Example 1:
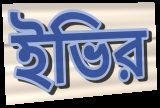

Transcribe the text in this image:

ইভির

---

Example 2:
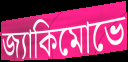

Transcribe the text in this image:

জ্যাকিমোভে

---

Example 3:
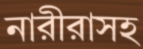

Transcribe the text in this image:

নারীরাসহ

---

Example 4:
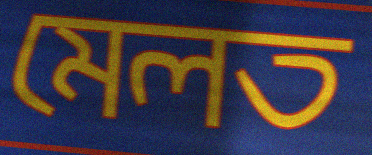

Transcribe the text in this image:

মেলত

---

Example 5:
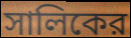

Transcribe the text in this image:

সালিকের